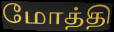
மோத்தி